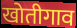
खोतीगाव